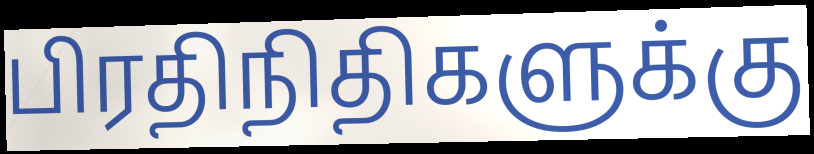
பிரதிநிதிகளுக்கு